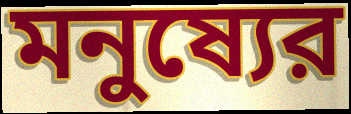
মনুষ্যের